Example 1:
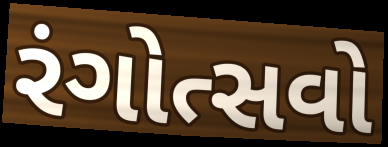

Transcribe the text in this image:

રંગોત્સવો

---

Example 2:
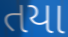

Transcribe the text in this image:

તયા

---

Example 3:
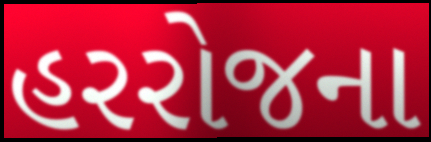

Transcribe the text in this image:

હરરોજના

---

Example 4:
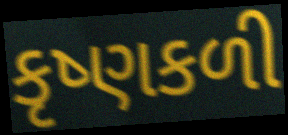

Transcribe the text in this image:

કૃષ્ણકળી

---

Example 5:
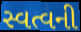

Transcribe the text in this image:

સ્વત્વની